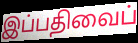
இப்பதிவைப்